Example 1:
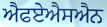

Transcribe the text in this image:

ਐਫਏਐਸਐਨ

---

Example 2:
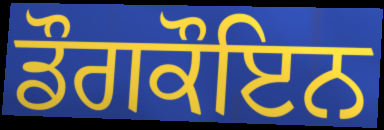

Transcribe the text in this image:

ਡੌਗਕੌਇਨ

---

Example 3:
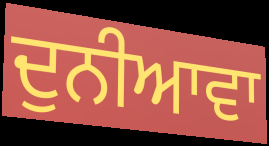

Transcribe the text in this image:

ਦੁਨੀਆਵਾ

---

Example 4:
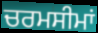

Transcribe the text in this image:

ਚਰਮਸੀਮਾਂ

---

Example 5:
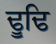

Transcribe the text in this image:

ਢੂਢਿ